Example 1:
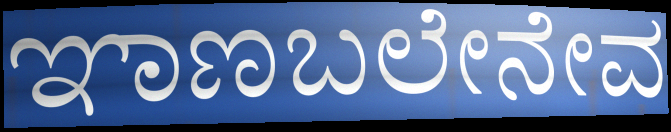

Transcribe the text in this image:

ಞಾಣಬಲೇನೇವ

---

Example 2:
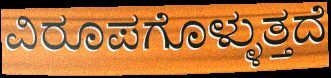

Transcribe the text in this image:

ವಿರೂಪಗೊಳ್ಳುತ್ತದೆ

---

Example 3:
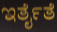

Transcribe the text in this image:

ಇರ್ತೈತೆ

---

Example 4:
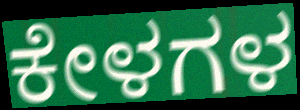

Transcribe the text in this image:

ಕೇಳಗಳ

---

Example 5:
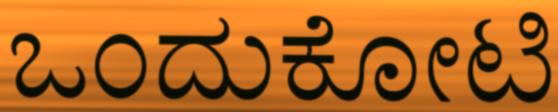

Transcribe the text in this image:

ಒಂದುಕೋಟಿ